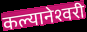
कल्यानेश्वरी